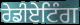
ਰੇਡੀਏਟਿੰਗ